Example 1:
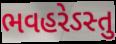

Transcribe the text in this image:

ભવહરેઽસ્તુ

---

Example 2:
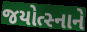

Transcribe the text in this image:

જયોત્સ્નાને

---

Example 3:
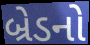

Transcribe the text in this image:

બ્રેડનો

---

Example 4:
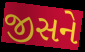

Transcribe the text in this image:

જીસને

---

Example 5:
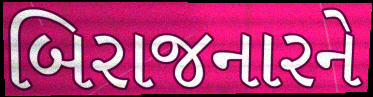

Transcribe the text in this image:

બિરાજનારને